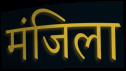
मंजिला